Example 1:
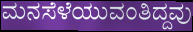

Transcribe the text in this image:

ಮನಸೆಳೆಯುವಂತಿದ್ದವು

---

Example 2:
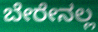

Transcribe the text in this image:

ಬೇರೇನಲ್ಲ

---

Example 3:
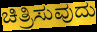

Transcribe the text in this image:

ಚಿತ್ರಿಸುವುದು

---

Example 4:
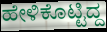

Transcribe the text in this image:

ಹೇಳಿಕೊಟ್ಟಿದ್ದ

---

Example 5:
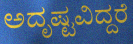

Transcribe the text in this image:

ಅದೃಷ್ಟವಿದ್ದರೆ